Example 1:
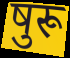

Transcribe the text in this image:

षुरू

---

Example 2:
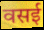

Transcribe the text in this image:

वसई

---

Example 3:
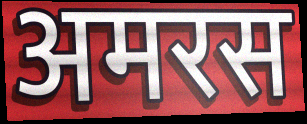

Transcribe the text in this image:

अमरस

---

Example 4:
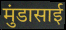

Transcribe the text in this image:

मुंडासाई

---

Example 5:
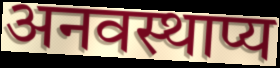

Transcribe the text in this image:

अनवस्थाप्य